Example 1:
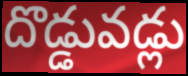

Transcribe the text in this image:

దొడ్డువడ్లు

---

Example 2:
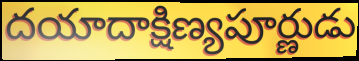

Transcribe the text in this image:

దయాదాక్షిణ్యపూర్ణుడు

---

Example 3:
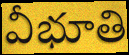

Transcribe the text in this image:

వీభూతి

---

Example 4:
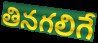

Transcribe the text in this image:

తినగలిగే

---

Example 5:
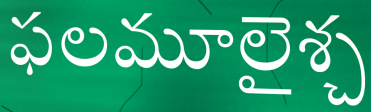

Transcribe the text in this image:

ఫలమూలైశ్చ